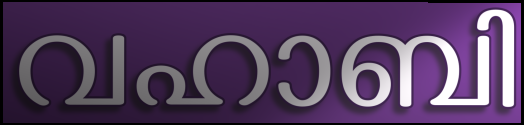
വഹാബി